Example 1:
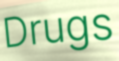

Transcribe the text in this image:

Drugs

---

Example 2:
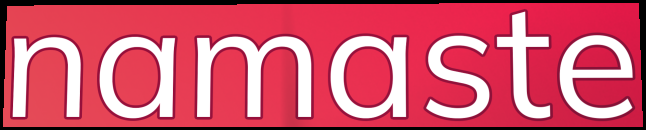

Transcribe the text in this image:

namaste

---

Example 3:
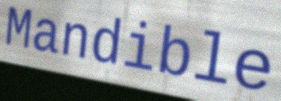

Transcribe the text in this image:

Mandible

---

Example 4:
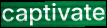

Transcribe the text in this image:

captivate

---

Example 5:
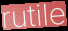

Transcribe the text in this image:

rutile